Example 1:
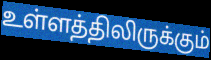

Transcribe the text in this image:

உள்ளத்திலிருக்கும்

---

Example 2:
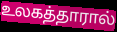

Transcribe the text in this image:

உலகத்தாரால்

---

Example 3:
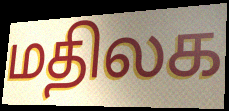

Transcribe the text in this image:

மதிலக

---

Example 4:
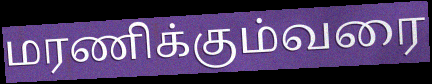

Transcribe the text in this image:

மரணிக்கும்வரை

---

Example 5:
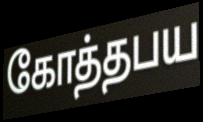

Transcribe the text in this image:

கோத்தபய